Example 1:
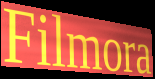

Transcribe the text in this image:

Filmora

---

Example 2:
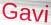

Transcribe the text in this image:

Gavi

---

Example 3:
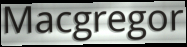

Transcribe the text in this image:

Macgregor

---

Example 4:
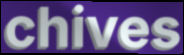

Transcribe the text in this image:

chives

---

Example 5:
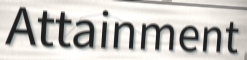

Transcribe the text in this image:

Attainment